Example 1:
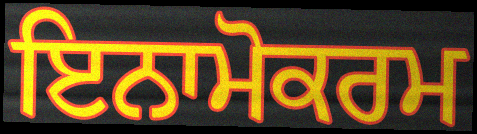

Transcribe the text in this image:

ਇਨਾਮੋਕਰਮ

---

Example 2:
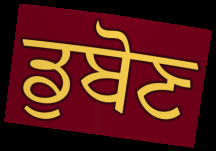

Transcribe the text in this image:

ਡੁਬੋਣ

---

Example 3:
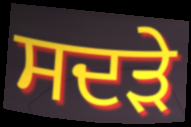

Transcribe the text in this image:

ਸਦੜੇ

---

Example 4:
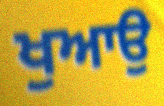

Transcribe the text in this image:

ਖੁਆਉ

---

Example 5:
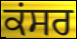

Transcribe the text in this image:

ਕਂਸਰ